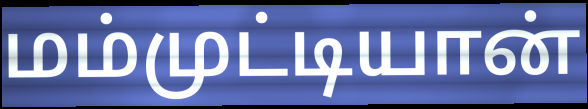
மம்முட்டியான்